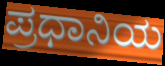
ಪ್ರಧಾನಿಯ